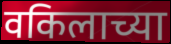
वकिलाच्या